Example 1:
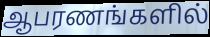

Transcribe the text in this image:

ஆபரணங்களில்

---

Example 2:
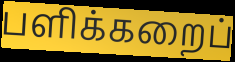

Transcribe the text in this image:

பளிக்கறைப்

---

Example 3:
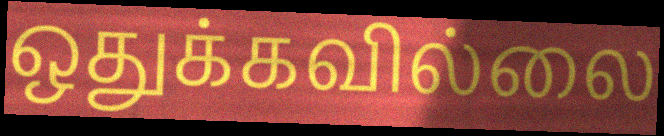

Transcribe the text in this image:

ஒதுக்கவில்லை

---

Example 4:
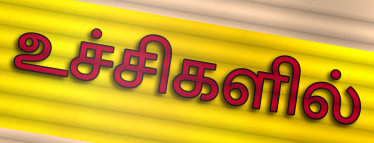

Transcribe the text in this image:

உச்சிகளில்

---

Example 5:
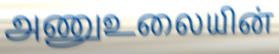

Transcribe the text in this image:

அணுஉலையின்